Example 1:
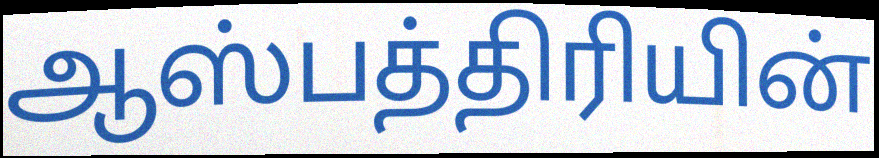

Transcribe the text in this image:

ஆஸ்பத்திரியின்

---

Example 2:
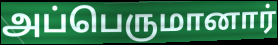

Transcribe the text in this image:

அப்பெருமானார்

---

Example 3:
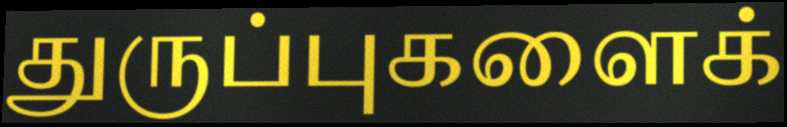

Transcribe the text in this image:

துருப்புகளைக்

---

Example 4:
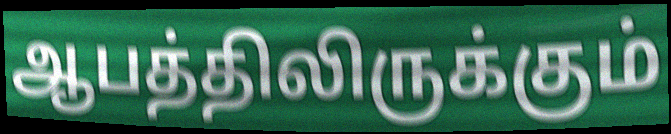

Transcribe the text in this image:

ஆபத்திலிருக்கும்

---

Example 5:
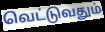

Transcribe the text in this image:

வெட்டுவதும்